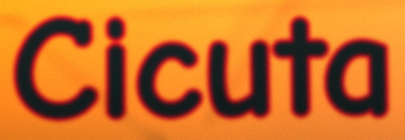
Cicuta